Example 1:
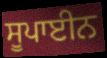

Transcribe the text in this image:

ਸੂਪਾਈਨ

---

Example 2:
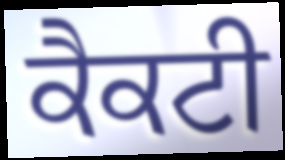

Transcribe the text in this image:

ਕੈਕਟੀ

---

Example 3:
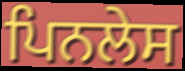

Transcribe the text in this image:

ਪਿਨਲੇਸ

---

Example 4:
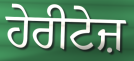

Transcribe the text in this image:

ਹੇਰੀਟੇਜ਼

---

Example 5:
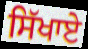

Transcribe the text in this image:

ਸਿੱਖਾਏ